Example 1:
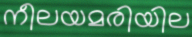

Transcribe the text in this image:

നീലയമരിയില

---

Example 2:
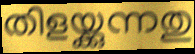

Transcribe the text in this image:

തിളയ്ക്കുന്നതു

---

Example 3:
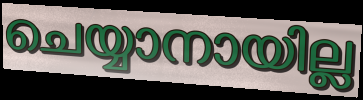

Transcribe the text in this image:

ചെയ്യാനായില്ല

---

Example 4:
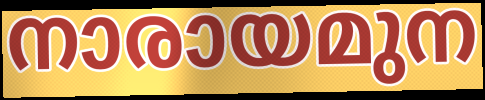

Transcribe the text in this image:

നാരായമുന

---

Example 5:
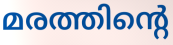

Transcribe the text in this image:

മരത്തിന്റെ